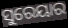
ସୁରେୟାର